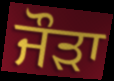
ਜੌੜਾ